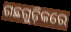
ଗଛଗୁଡ଼ିକରେ